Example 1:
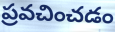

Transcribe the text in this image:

ప్రవచించడం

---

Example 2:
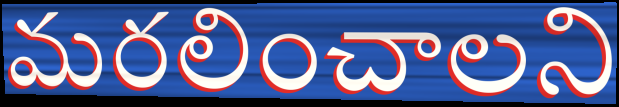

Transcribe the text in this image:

మరలించాలని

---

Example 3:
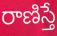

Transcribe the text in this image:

రాణిస్తే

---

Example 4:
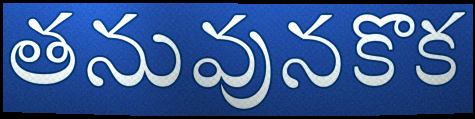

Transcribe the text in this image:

తనువునకొక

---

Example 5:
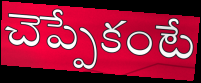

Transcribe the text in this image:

చెప్పేకంటే